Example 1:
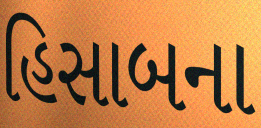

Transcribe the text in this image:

હિસાબના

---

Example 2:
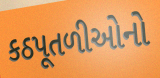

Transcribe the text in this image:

કઠપૂતળીઓનો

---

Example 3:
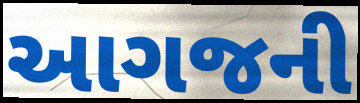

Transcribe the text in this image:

આગજની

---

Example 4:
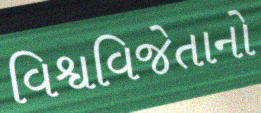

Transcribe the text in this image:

વિશ્વવિજેતાનો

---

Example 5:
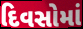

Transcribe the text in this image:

દિવસોમાં